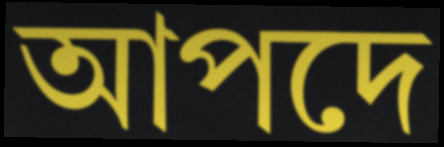
আপদে